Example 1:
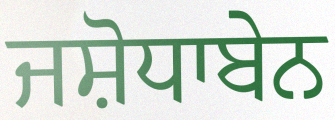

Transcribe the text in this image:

ਜਸ਼ੋਧਾਬੇਨ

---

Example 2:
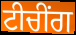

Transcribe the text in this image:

ਟੀਚੀਂਗ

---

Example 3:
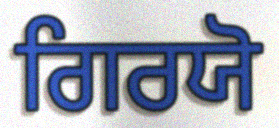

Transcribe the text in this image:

ਗਿਰਯੋ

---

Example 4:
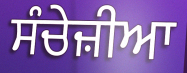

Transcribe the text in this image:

ਸੰਚੇਜ਼ੀਆ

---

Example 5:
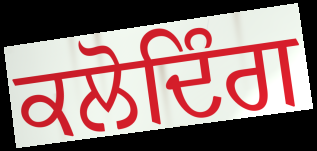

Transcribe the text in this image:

ਕਲੋਦਿੰਗ